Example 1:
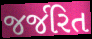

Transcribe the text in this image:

જર્જરિત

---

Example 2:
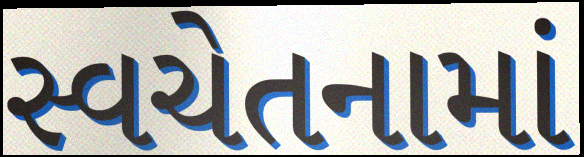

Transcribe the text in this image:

સ્વચેતનામાં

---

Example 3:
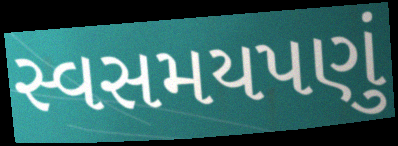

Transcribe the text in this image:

સ્વસમયપણું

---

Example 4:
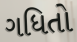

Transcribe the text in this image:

ગધિતો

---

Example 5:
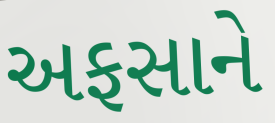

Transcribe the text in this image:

અફસાને